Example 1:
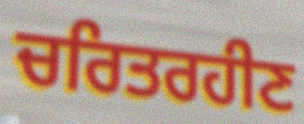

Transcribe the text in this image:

ਚਰਿਤਰਹੀਣ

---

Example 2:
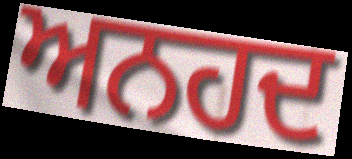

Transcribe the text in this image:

ਅਨਹਦ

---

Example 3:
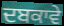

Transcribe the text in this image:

ਦਬਕਾਵੇ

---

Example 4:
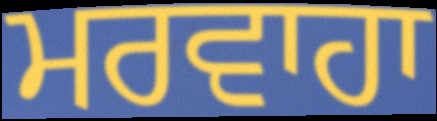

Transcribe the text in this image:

ਮਰਵਾਹਾ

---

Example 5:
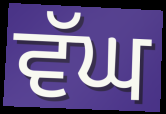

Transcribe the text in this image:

ਵੱਘ